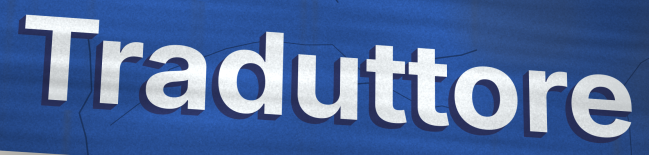
Traduttore